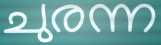
ചുരന്ന